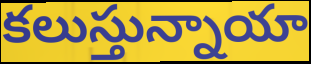
కలుస్తున్నాయా